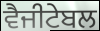
ਵੈਜੀਟੇਬਲ